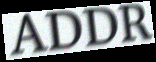
ADDR